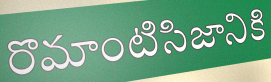
రొమాంటిసిజానికి